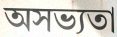
অসভ্যতা